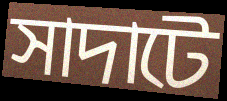
সাদাটে